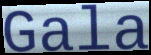
Gala